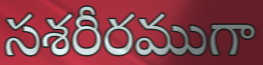
సశరీరముగా